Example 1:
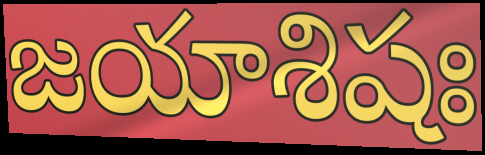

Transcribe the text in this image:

జయాశిషః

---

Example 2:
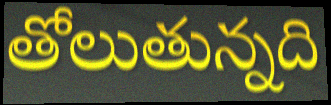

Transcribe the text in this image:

తోలుతున్నది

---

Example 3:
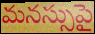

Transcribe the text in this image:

మనస్సుపై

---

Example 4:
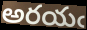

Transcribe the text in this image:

అరయఁ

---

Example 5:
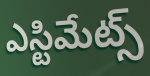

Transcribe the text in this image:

ఎస్టిమేట్స్